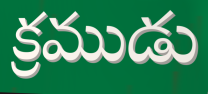
క్రముడు